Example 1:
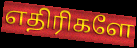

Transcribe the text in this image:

எதிரிகளே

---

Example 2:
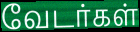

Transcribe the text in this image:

வேடர்கள்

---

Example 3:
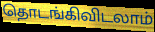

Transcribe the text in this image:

தொடங்கிவிடலாம்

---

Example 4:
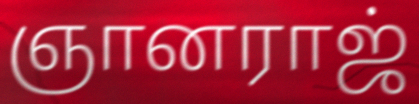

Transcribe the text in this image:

ஞானராஜ்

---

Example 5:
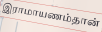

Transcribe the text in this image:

இராமாயணம்தான்